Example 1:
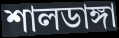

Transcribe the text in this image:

শালডাঙ্গা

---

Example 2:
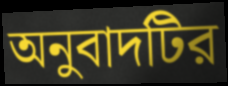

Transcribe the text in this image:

অনুবাদটির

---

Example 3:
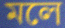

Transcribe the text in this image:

মলে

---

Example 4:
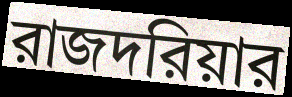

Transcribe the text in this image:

রাজদরিয়ার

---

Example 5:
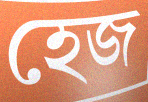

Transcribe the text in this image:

হেজ